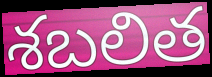
శబలిత